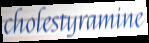
cholestyramine